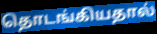
தொடங்கியதால்